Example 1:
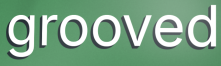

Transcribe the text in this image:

grooved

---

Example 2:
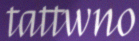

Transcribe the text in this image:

tattwno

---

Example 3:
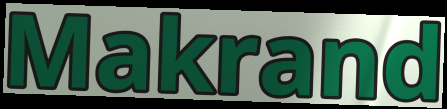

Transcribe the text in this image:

Makrand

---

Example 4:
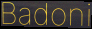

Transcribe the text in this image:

Badoni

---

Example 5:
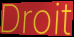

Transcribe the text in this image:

Droit